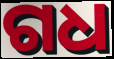
ଗଧ